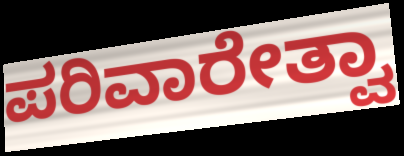
ಪರಿವಾರೇತ್ವಾ